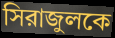
সিরাজুলকে